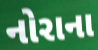
નોરાના